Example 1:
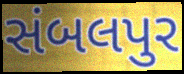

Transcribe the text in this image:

સંબલપુર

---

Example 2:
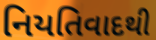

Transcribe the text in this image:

નિયતિવાદથી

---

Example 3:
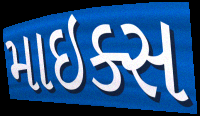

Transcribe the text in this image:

માઇક્સ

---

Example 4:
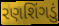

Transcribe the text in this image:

રણશિંગડું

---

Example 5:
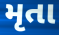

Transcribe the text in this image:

મૃતા